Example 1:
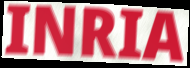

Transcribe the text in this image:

INRIA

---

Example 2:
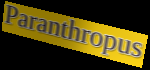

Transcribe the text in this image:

Paranthropus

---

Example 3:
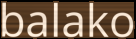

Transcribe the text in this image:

balako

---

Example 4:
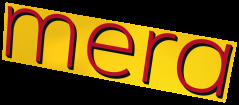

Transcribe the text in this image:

mera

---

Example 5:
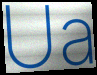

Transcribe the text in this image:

Ua